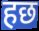
हछ